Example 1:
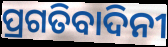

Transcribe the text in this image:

ପ୍ରଗତିବାଦିନୀ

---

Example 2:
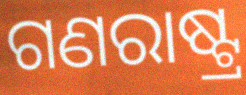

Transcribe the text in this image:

ଗଣରାଷ୍ଟ୍ର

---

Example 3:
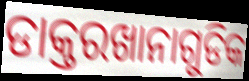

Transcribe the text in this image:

ଡାକ୍ତରଖାନାଗୁଡିକ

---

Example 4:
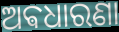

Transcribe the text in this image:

ଅଵଧାରଣା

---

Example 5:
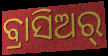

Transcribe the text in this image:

ବ୍ରାସିଅର୍